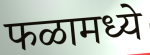
फळामध्ये